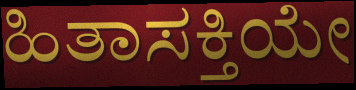
ಹಿತಾಸಕ್ತಿಯೇ